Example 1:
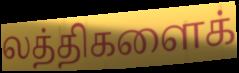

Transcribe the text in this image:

லத்திகளைக்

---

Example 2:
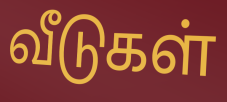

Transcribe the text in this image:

வீடுகள்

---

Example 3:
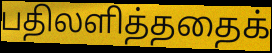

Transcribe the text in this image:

பதிலளித்ததைக்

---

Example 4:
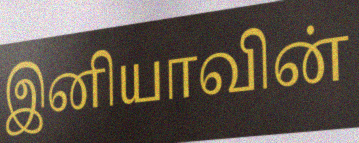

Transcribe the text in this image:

இனியாவின்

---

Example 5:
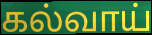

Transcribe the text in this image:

கல்வாய்